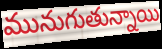
మునుగుతున్నాయి